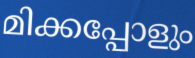
മിക്കപ്പോളും